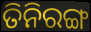
ତିନିରଙ୍ଗ